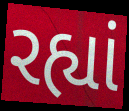
રહ્યાં